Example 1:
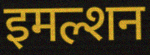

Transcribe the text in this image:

इमल्शन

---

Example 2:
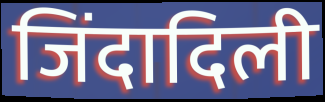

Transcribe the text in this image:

जिंदादिली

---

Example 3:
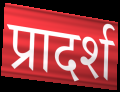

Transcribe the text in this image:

प्रादर्श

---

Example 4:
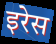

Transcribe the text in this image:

इरेस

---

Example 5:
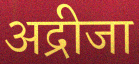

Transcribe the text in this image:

अद्रीजा